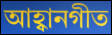
আহ্বানগীত